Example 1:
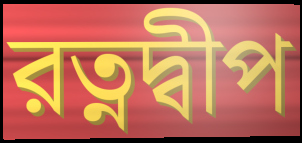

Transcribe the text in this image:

রত্নদ্বীপ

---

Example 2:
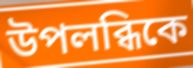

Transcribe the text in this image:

উপলব্ধিকে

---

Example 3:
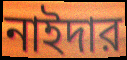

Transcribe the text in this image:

নাইদার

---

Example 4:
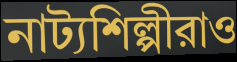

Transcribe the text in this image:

নাট্যশিল্পীরাও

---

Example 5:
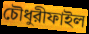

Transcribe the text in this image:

চৌধুরীফাইল